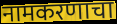
नामकरणाचा